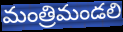
మంత్రిమండలి